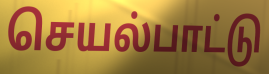
செயல்பாட்டு